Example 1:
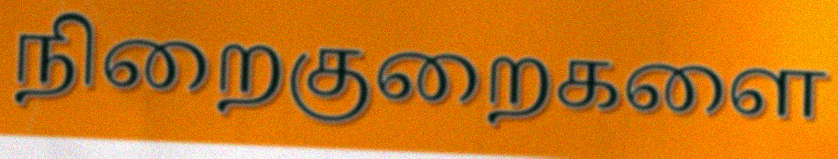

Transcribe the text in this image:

நிறைகுறைகளை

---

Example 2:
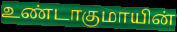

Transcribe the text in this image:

உண்டாகுமாயின்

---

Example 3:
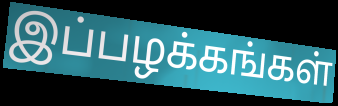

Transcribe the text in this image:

இப்பழக்கங்கள்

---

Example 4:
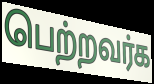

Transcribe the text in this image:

பெற்றவர்க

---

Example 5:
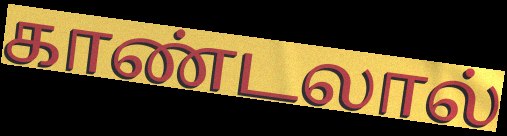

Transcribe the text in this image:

காண்டலால்